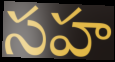
సహ